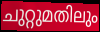
ചുറ്റുമതിലും